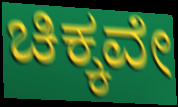
ಚಿಕ್ಕವೇ